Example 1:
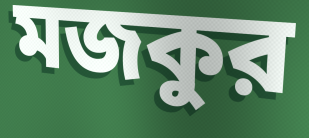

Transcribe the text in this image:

মজকুর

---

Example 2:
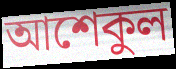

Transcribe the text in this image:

আশেকুল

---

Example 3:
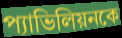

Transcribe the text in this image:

প্যাভিলিয়নকে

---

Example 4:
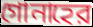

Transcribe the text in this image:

গোনাহের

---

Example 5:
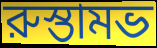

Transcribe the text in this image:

রুস্তামভ